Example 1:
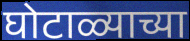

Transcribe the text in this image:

घोटाळ्याच्या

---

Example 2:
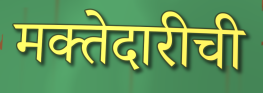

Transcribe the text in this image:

मक्तेदारीची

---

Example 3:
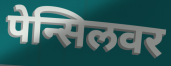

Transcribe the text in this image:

पेन्सिलवर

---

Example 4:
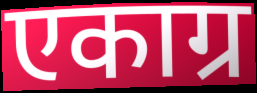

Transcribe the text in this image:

एकाग्र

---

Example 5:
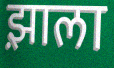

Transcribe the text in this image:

झ़ाला